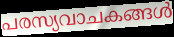
പരസ്യവാചകങ്ങൾ